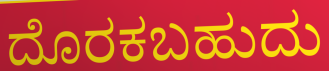
ದೊರಕಬಹುದು